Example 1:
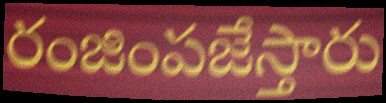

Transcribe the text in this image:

రంజింపజేస్తారు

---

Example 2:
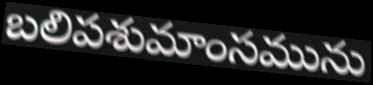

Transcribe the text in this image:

బలిపశుమాంసమును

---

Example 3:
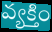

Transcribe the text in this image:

వ్యక్తిం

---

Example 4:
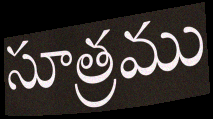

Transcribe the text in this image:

సూత్రము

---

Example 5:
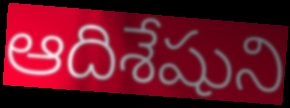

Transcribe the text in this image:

ఆదిశేషుని